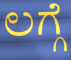
ಲಗ್ಗೆ